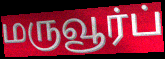
மருவூர்ப்